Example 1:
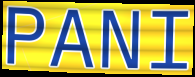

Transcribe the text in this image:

PANI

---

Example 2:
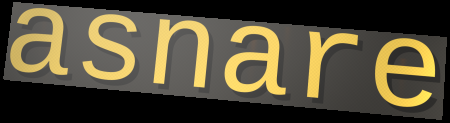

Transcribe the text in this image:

asnare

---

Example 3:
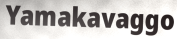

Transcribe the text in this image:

Yamakavaggo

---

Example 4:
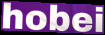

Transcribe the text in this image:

hobei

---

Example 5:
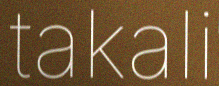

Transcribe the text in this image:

takali